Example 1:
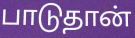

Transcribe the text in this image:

பாடுதான்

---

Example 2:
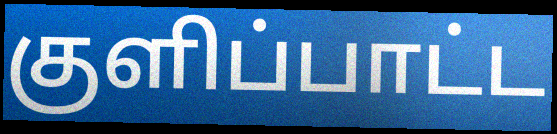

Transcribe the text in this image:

குளிப்பாட்ட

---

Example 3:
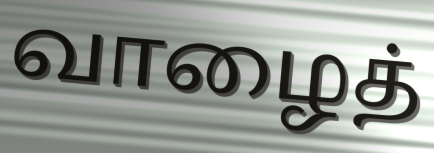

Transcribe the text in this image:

வாழைத்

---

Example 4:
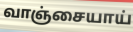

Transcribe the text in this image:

வாஞ்சையாய்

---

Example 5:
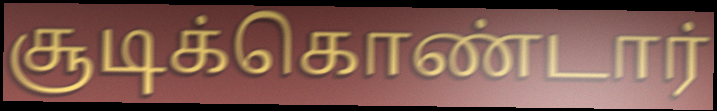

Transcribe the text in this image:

சூடிக்கொண்டார்